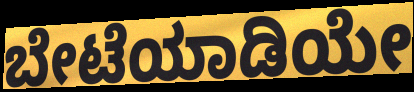
ಬೇಟೆಯಾಡಿಯೇ